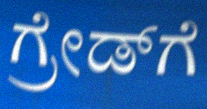
ಗ್ರೇಡ್‌ಗೆ